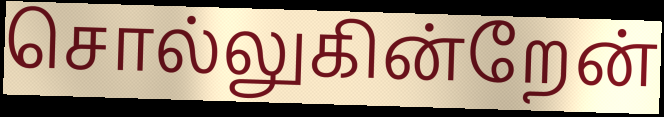
சொல்லுகின்றேன்